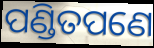
ପଣ୍ଡିତପଣେ